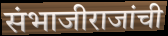
संभाजीराजांची